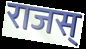
राजस्